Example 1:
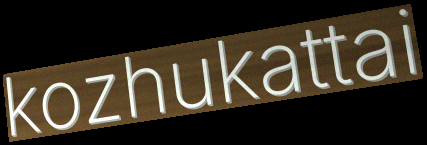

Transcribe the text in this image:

kozhukattai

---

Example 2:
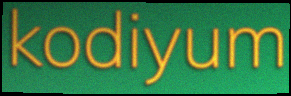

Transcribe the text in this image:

kodiyum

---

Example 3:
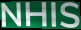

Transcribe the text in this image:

NHIS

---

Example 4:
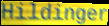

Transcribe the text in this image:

Hildinger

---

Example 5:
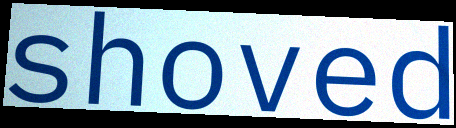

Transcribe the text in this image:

shoved